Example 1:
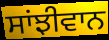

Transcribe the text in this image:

ਸਾਂਝੀਵਾਨ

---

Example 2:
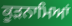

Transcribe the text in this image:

ਕੂੜਨਾਮਿਆਂ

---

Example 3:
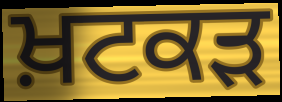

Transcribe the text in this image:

ਖ਼ਟਕੜ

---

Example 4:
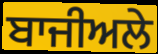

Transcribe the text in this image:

ਬਾਜੀਅਲੇ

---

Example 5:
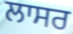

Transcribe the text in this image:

ਲਾਸਰ